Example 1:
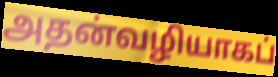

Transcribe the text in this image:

அதன்வழியாகப்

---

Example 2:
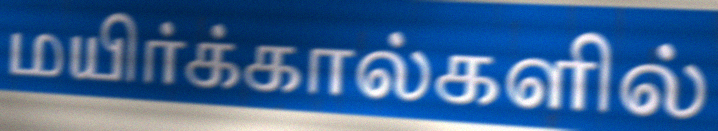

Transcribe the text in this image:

மயிர்க்கால்களில்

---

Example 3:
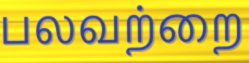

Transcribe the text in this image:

பலவற்றை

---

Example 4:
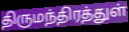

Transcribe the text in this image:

திருமந்திரத்துள்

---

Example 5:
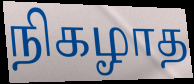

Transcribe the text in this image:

நிகழாத